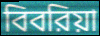
বিবরিয়া